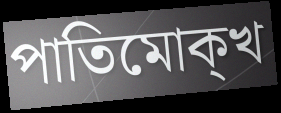
পাতিমোক্খ